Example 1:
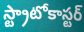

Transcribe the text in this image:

స్ట్రాటోకాస్టర్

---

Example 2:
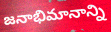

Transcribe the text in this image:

జనాభిమానాన్ని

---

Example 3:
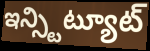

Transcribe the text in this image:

ఇన్స్టిట్యూట్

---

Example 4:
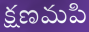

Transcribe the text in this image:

క్షణమపి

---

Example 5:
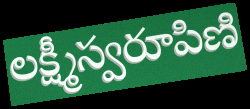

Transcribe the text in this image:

లక్ష్మీస్వరూపిణి